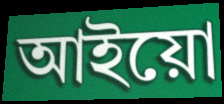
আইয়ো